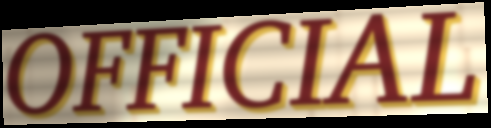
OFFICIAL